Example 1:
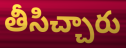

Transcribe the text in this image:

తీసిచ్చారు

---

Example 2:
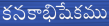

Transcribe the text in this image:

కనకాభిషేకము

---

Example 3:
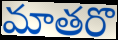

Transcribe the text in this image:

మాతరొ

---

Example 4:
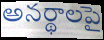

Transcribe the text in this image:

అనర్థాలపై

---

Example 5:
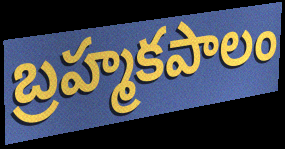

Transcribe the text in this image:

బ్రహ్మకపాలం